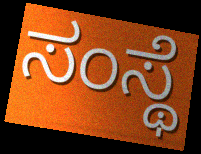
ಸಂಸ್ಥೆ